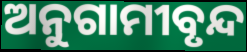
ଅନୁଗାମୀବୃନ୍ଦ